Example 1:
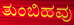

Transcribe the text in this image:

ತುಂಬಿಹವು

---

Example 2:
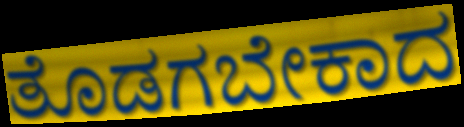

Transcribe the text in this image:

ತೊಡಗಬೇಕಾದ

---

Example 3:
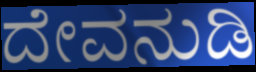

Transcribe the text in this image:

ದೇವನುಡಿ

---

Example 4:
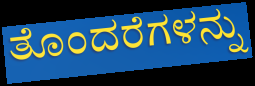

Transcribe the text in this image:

ತೊಂದರೆಗಳನ್ನು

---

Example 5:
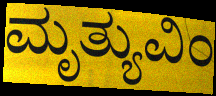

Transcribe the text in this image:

ಮೃತ್ಯುವಿಂ